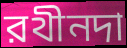
রথীনদা